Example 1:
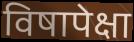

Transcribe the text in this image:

विषापेक्षा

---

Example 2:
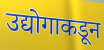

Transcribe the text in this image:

उद्योगाकडून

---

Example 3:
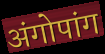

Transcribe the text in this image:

अंगोपांग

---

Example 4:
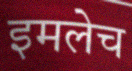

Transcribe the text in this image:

इमलेच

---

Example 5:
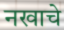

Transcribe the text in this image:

नखाचे